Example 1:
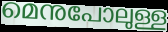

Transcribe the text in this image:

മെനുപോലുള്ള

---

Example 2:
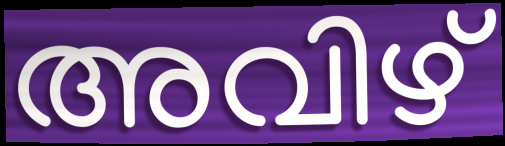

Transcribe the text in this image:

അവിഴ്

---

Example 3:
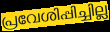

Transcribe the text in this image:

പ്രവേശിപ്പിച്ചില്ല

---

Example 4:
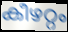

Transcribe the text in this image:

കീഴറ്റം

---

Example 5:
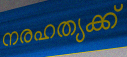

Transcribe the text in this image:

നരഹത്യക്ക്